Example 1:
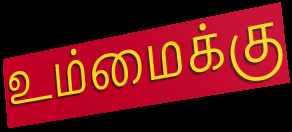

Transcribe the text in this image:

உம்மைக்கு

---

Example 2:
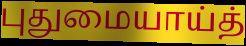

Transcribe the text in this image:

புதுமையாய்த்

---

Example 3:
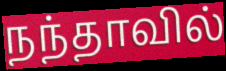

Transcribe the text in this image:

நந்தாவில்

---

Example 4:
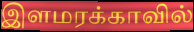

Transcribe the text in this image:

இளமரக்காவில்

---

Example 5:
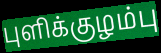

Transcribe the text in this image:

புளிக்குழம்பு